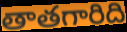
తాతగారిది